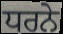
ਧਰਨੇ